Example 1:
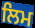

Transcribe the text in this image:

ਲਿਮ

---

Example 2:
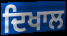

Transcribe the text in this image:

ਦਿਖਾਲ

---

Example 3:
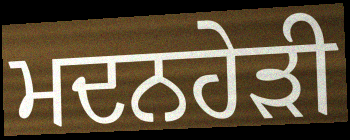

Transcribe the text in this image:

ਮਦਨਹੇੜੀ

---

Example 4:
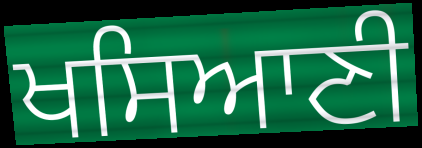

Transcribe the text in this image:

ਖਸਿਆਣੀ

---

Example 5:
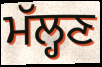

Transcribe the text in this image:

ਮੱਲ੍ਹਣ